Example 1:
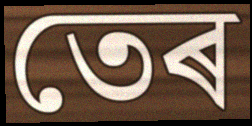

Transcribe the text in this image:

তেৰ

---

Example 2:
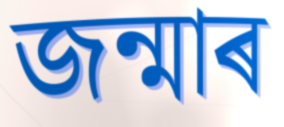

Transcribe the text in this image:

জন্মাৰ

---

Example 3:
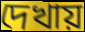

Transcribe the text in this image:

দেখায়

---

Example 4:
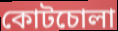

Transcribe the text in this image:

কোটচোলা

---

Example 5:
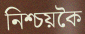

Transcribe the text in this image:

নিশ্চয়কৈ